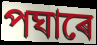
পঘাৰে